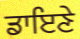
ਡਾਇਣੇ